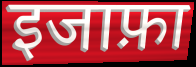
इजाफ़ा